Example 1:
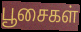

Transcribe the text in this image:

பூசைகள்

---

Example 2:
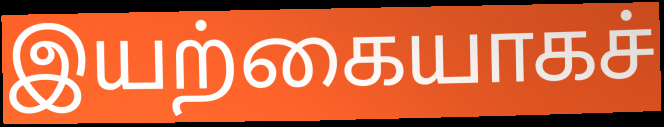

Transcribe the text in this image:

இயற்கையாகச்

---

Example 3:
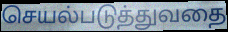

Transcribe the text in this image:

செயல்படுத்துவதை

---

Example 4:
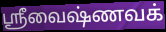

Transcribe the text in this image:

ஸ்ரீவைஷ்ணவக்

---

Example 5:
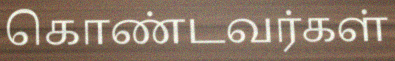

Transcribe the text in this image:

கொண்டவர்கள்